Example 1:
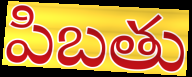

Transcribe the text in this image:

పిబతు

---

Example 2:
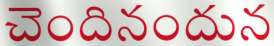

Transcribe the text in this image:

చెందినందున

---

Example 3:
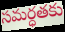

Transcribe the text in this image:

సమర్ధతకు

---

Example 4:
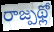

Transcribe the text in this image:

రాజ్పథ్లో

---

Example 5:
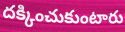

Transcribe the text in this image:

దక్కించుకుంటారు